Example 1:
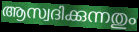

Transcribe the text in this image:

ആസ്വദിക്കുന്നതും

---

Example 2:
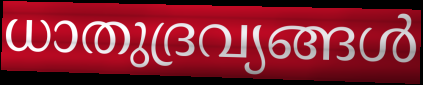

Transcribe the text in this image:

ധാതുദ്രവ്യങ്ങൾ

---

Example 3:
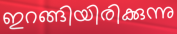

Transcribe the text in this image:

ഇറങ്ങിയിരിക്കുന്നു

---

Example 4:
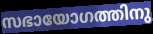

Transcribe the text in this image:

സഭായോഗത്തിനു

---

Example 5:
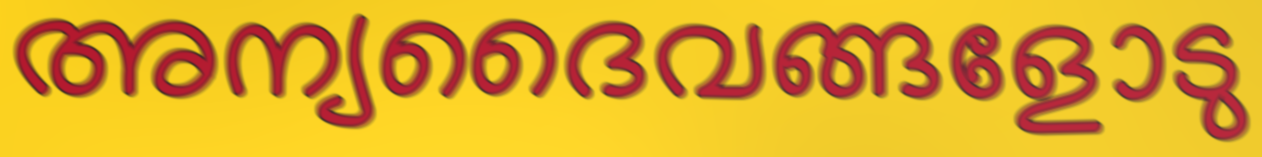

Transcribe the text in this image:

അന്യദൈവങ്ങളോടു